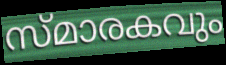
സ്മാരകവും